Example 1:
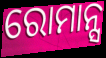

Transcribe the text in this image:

ରୋମାନ୍ସ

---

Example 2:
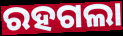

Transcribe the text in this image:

ରହଗଲା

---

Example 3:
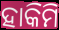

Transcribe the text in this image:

ହାକିମି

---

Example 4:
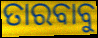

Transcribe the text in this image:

ତାରବାବୁ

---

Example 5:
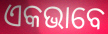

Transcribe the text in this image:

ଏକଭାବେ